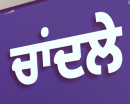
ਚਾਂਦਲੇ